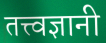
तत्त्वज्ञानी